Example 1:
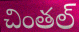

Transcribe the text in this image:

చింతల్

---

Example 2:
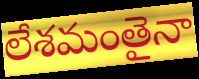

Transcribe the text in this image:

లేశమంతైనా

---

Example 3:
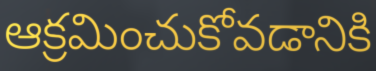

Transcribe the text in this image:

ఆక్రమించుకోవడానికి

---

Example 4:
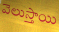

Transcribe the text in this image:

వెలుస్తాయి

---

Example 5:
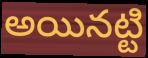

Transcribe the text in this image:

అయినట్టి